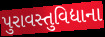
પુરાવસ્તુવિદ્યાના